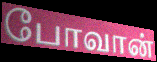
போவான்